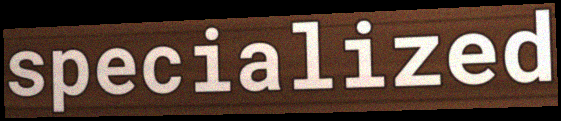
specialized